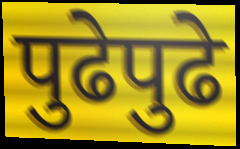
पुढेपुढे